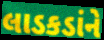
લાડકડાંને